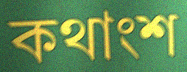
কথাংশ